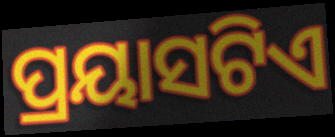
ପ୍ରୟାସଟିଏ